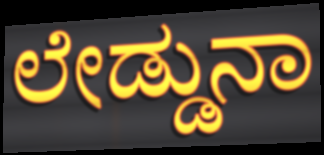
ಲೇಡ್ಡುನಾ